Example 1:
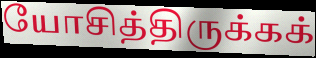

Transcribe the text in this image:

யோசித்திருக்கக்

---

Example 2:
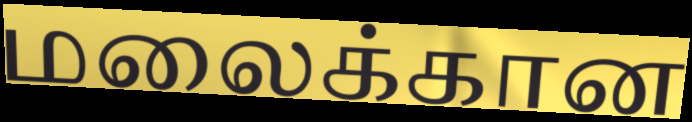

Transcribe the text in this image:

மலைக்கான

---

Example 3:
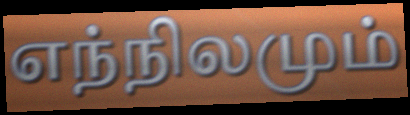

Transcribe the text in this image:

எந்நிலமும்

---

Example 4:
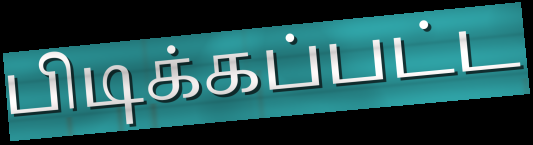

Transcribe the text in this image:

பிடிக்கப்பட்ட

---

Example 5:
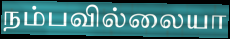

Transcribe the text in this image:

நம்பவில்லையா